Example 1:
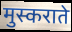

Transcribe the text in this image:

मुस्कराते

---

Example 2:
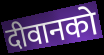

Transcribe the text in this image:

दीवानको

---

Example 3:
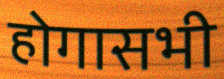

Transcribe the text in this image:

होगासभी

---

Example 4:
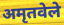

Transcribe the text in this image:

अमृतवेले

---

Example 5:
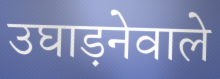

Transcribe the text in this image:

उघाड़नेवाले